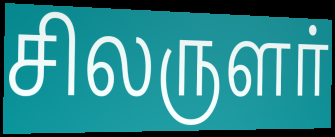
சிலருளர்